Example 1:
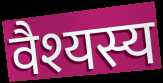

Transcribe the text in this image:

वैश्यस्य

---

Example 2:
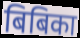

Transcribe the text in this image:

बिबिका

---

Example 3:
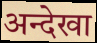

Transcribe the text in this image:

अन्देखा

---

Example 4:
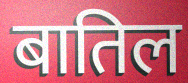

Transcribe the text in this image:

बातिल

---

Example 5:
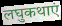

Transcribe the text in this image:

लघुकथाएं